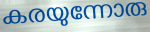
കരയുന്നോരു